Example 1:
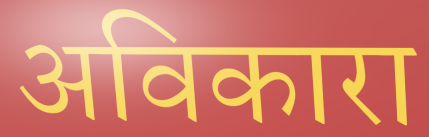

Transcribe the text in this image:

अविकारा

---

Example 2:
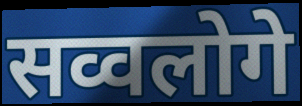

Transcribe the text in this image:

सव्वलोगे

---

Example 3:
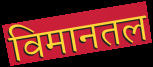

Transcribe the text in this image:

विमानतल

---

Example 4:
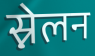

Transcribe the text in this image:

स्नेलन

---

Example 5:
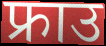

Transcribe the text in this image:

फ्राउ